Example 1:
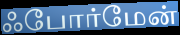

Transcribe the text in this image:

ஃபோர்மேன்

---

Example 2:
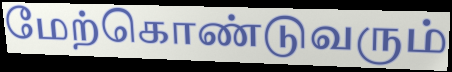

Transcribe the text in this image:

மேற்கொண்டுவரும்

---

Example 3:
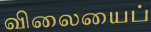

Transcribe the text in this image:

விலையைப்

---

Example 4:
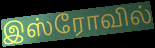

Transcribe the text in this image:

இஸ்ரோவில்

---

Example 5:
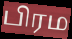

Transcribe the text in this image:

பிரம